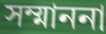
সম্মাননা